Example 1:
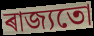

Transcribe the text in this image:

ৰাজ্যতো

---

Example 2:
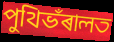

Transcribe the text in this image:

পুথিভঁৰালত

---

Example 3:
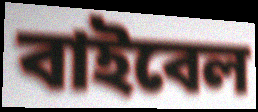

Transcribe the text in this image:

বাইবেল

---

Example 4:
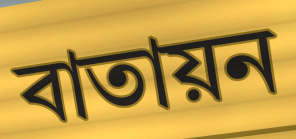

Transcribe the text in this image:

বাতায়ন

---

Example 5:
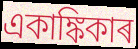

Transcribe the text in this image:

একাঙ্কিকাৰ